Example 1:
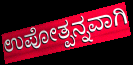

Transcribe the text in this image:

ಉಪೋತ್ಪನ್ನವಾಗಿ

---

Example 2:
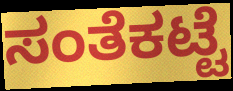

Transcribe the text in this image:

ಸಂತೆಕಟ್ಟೆ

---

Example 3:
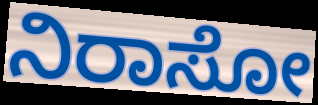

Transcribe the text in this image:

ನಿರಾಸೋ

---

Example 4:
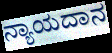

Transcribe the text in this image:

ನ್ಯಾಯದಾನ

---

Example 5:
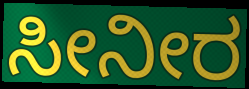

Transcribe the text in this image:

ಸೀನೀರ